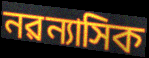
নৱন্যাসিক